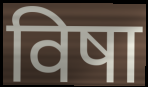
विषा